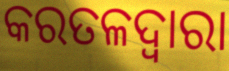
କରତଳଦ୍ଵାରା